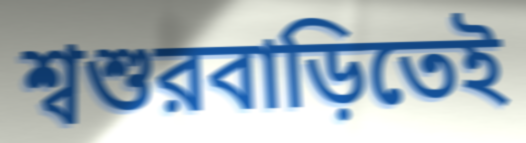
শ্বশুরবাড়িতেই